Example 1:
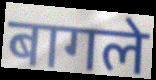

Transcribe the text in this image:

बागले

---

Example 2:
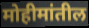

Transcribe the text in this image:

मोहीमांतील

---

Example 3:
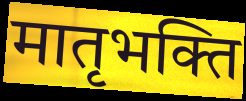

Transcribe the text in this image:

मातृभक्ति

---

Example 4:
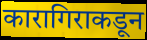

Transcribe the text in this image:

कारागिराकडून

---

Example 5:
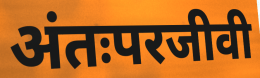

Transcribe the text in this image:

अंतःपरजीवी